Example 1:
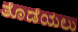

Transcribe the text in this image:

ತೊಡೆಯಲು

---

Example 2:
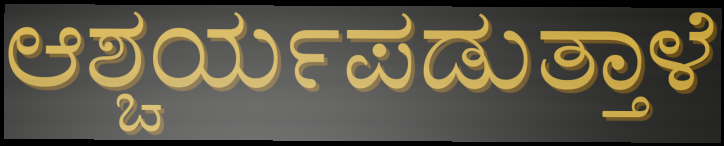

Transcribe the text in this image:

ಆಶ್ಚರ್ಯಪಡುತ್ತಾಳೆ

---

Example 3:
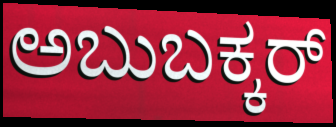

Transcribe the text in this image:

ಅಬುಬಕ್ಕರ್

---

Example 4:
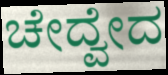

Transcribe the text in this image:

ಚೇದ್ವೇದ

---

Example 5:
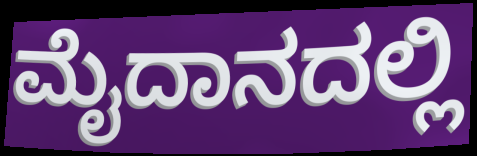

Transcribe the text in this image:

ಮೈದಾನದಲ್ಲಿ